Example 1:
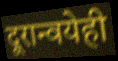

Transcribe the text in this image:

दूरान्वयेही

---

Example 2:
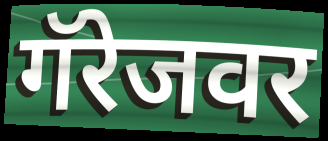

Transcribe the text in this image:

गॅरेजवर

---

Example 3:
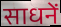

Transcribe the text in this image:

साधनें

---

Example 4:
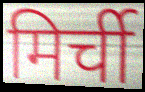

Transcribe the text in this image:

मिर्ची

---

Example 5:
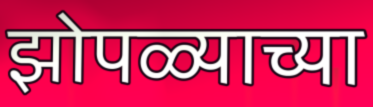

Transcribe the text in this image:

झोपळ्याच्या